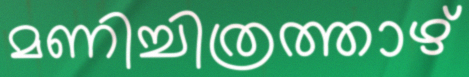
മണിച്ചിത്രത്താഴ്